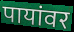
पायांवर